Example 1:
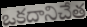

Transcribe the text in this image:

ఒకదానిచేత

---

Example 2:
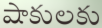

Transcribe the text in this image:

షాకులకు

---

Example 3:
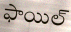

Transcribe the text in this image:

ఫాయిల్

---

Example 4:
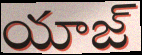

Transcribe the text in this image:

యాజ్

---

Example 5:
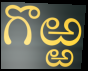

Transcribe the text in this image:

గొఱ్ఱ